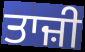
ਤਾਜ਼ੀ